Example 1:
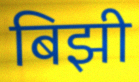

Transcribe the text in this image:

बिझी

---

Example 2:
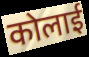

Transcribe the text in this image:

कोलाई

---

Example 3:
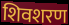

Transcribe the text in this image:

शिवशरण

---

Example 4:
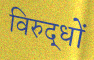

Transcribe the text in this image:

विरुद्धों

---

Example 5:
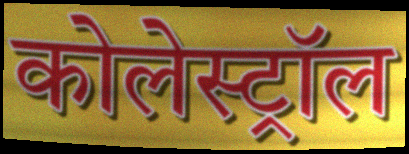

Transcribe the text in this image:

कोलेस्‍ट्रॉल